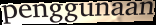
penggunaan